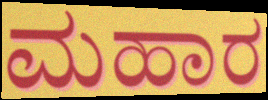
ಮಹಾರ